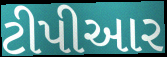
ટીપીઆર